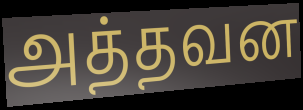
அத்தவன